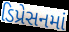
ડિપ્રેસનમાં